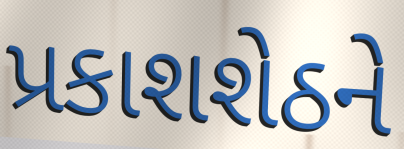
પ્રકાશશેઠને